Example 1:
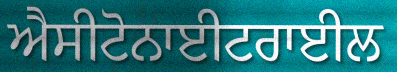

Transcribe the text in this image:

ਐਸੀਟੋਨਾਈਟਰਾਈਲ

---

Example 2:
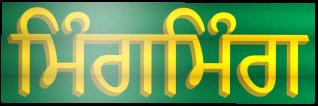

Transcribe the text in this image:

ਮਿੰਗਮਿੰਗ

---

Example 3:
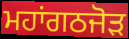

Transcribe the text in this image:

ਮਹਾਂਗਠਜੋਡ਼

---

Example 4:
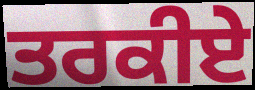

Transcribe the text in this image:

ਤਰਕੀਏ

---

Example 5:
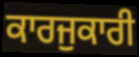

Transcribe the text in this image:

ਕਾਰਜੁਕਾਰੀ